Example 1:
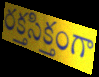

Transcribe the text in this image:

రక్తసిక్తంగా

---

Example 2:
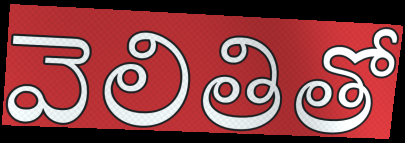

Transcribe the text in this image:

వెలితితో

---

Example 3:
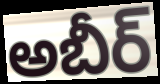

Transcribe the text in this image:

అబీర్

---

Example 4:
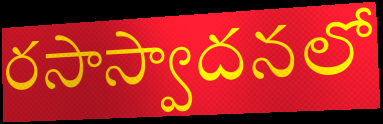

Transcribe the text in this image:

రసాస్వాదనలో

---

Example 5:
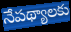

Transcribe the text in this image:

నేపథ్యాలకు